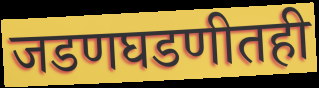
जडणघडणीतही